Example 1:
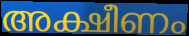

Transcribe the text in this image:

അക്ഷീണം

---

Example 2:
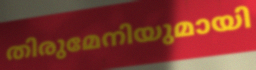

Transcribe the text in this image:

തിരുമേനിയുമായി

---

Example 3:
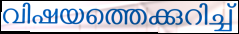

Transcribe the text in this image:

വിഷയത്തെക്കുറിച്ച്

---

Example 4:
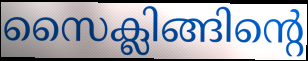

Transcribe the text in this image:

സൈക്ലിങ്ങിന്റെ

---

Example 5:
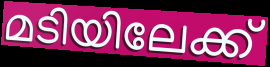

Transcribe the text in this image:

മടിയിലേക്ക്